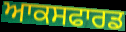
ਆਕਸਫਾਰਡ